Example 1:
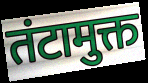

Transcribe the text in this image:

तंटामुक्त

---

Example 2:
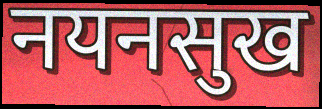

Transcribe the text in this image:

नयनसुख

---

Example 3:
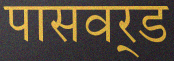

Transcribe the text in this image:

पासवर्ड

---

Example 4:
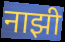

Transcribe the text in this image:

नाझी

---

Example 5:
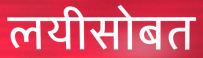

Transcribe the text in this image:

लयीसोबत